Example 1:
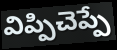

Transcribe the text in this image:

విప్పిచెప్పే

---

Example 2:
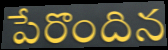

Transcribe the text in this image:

పేరొందిన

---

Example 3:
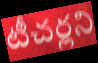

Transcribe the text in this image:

టీచర్లని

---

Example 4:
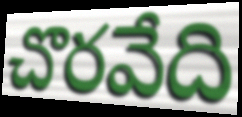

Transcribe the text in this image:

చొరవేది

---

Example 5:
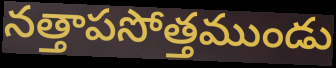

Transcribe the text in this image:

నత్తాపసోత్తముండు